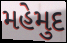
મહેમુદ